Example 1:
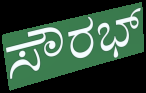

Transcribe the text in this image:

ಸೌರಭ್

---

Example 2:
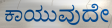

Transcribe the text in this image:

ಕಾಯುವುದೇ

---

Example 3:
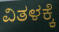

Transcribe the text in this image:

ವಿತಳಕ್ಕೆ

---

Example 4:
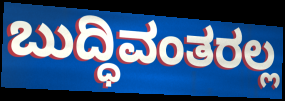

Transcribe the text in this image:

ಬುದ್ಧಿವಂತರಲ್ಲ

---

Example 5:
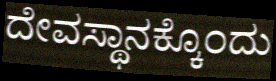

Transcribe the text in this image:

ದೇವಸ್ಥಾನಕ್ಕೊಂದು